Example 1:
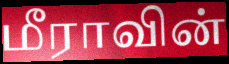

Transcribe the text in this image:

மீராவின்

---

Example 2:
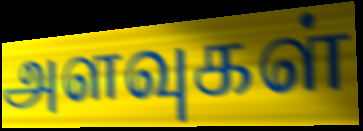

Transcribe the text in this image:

அளவுகள்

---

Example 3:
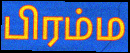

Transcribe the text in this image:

பிரம்ம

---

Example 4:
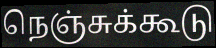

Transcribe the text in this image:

நெஞ்சுக்கூடு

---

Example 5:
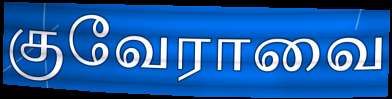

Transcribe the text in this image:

குவேராவை